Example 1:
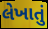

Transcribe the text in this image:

લેખાતું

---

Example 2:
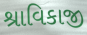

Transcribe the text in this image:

શ્રાવિકાજી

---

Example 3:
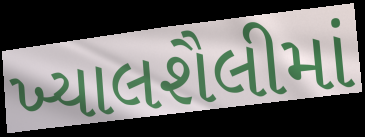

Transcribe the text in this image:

ખ્યાલશૈલીમાં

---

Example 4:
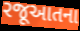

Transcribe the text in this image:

રજૂઆતના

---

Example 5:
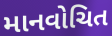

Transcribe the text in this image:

માનવોચિત